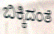
ಬಿಕ್ಕಿದಂತೆ